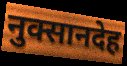
नुक्सानदेह